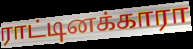
ராட்டினக்காரா